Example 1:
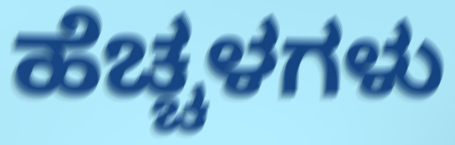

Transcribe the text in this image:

ಹೆಚ್ಚಳಗಳು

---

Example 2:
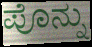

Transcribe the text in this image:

ಪೊನ್ನು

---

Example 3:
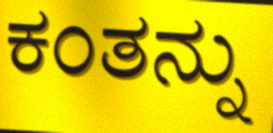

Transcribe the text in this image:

ಕಂತನ್ನು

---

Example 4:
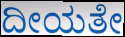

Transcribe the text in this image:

ದೀಯತೇ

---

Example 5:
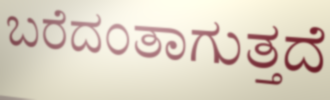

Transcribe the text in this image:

ಬರೆದಂತಾಗುತ್ತದೆ